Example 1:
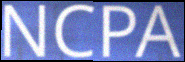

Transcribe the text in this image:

NCPA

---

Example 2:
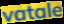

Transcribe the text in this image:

vatale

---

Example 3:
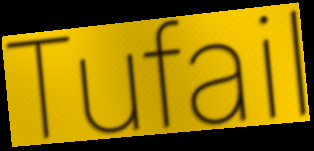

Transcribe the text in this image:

Tufail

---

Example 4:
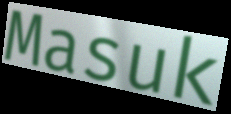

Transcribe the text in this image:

Masuk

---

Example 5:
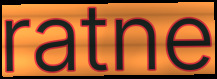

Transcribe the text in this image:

ratne